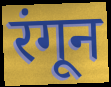
रंगून